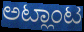
ಅಟ್ಲಾಂಟ